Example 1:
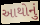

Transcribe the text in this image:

આથોનું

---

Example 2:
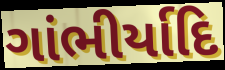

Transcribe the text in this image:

ગાંભીર્યાદિ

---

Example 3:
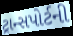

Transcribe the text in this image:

ટ્રાન્સપોર્ટની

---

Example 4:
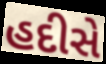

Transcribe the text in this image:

હદીસે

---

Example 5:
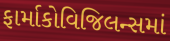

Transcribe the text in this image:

ફાર્માકોવિજિલન્સમાં